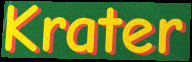
Krater